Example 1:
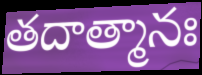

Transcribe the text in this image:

తదాత్మానః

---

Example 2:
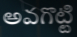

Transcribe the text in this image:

అవగొట్టి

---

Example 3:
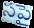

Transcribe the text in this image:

సపై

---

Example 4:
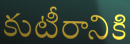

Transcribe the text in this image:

కుటీరానికి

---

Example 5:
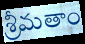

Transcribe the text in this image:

శ్రీమతాం